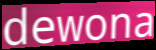
dewona